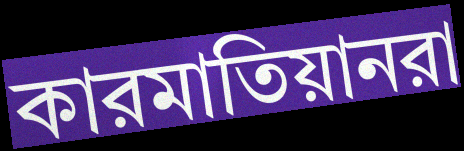
কারমাতিয়ানরা